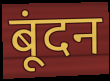
बूंदन